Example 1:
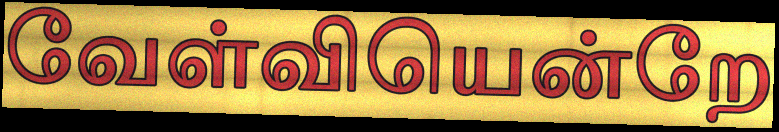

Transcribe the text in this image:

வேள்வியென்றே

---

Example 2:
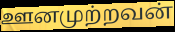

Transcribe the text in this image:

ஊனமுற்றவன்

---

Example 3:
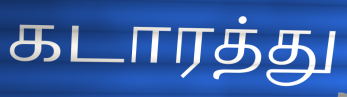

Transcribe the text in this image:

கடாரத்து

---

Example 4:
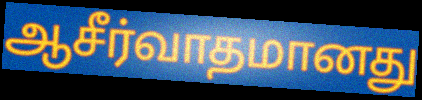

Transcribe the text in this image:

ஆசீர்வாதமானது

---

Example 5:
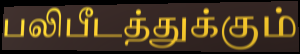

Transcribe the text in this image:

பலிபீடத்துக்கும்